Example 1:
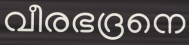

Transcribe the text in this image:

വീരഭദ്രനെ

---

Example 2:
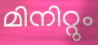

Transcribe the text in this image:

മിനിറ്റും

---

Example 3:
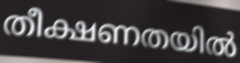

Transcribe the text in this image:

തീക്ഷണതയിൽ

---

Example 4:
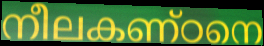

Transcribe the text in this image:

നീലകണ്ഠനെ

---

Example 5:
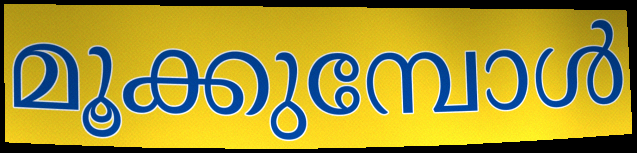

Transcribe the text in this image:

മൂക്കുമ്പോൾ